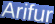
Arifur